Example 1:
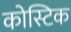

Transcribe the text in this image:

कोस्टिक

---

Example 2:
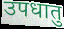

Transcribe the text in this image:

उपधातु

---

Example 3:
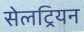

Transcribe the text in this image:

सेलट्रियन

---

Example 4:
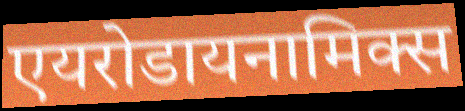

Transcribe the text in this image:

एयरोडायनामिक्स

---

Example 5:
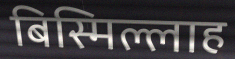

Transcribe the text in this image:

बिस्मिल्लाह